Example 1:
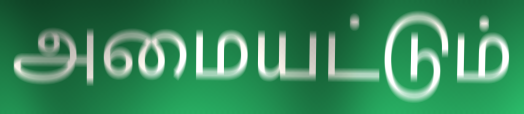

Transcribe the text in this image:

அமையட்டும்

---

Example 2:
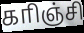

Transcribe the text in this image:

கரிஞ்சி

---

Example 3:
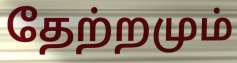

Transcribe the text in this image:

தேற்றமும்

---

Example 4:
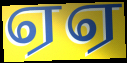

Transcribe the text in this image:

ஏஏ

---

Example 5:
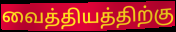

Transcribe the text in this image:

வைத்தியத்திற்கு